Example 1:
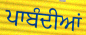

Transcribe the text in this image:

ਪਾਬੰਦੀਆਂ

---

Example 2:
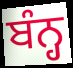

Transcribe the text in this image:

ਬੰਨ੍ਹ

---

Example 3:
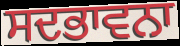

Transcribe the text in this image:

ਸਦਭਾਵਨਾ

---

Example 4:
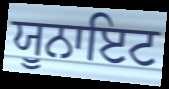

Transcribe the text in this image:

ਯੂਨਾਇਟ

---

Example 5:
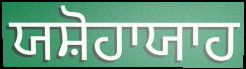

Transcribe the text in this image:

ਯਸ਼ੋਹਾਯਾਹ